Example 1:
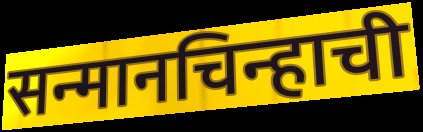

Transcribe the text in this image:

सन्मानचिन्हाची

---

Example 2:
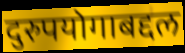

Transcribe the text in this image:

दुरुपयोगाबद्दल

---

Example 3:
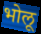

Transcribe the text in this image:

भोलू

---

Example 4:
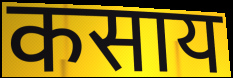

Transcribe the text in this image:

कसाय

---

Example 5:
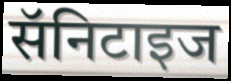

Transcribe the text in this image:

सॅनिटाइज